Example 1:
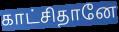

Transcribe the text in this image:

காட்சிதானே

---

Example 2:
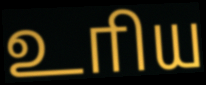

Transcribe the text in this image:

உரிய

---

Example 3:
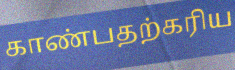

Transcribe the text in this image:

காண்பதற்கரிய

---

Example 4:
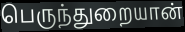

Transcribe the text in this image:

பெருந்துறையான்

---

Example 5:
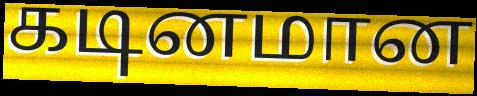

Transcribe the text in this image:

கடினமான